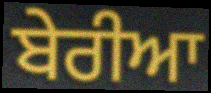
ਬੇਰੀਆ